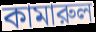
কামারুল